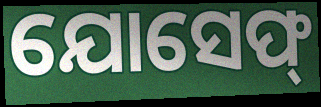
ଯୋସେଫ୍